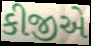
કીજીએ